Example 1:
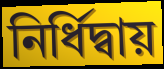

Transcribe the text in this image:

নির্ধিদ্বায়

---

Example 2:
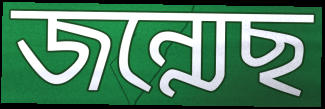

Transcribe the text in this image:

জন্মেছ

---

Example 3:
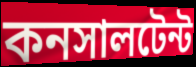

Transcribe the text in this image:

কনসালটেন্ট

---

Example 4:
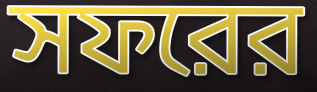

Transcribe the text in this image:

সফরের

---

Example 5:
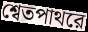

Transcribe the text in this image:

শ্বেতপাথরে